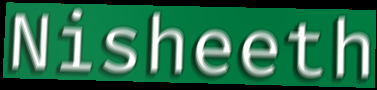
Nisheeth